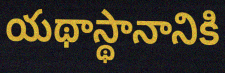
యథాస్థానానికి